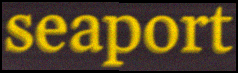
seaport